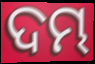
ଦମ୍ଭ